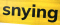
snying